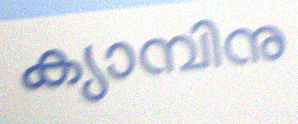
ക്യാമ്പിനു